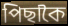
পিছাকৈ